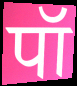
पॉ